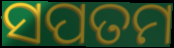
ସପତମ